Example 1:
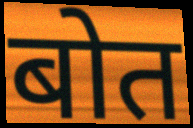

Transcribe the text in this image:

बोत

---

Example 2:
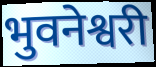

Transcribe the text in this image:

भुवनेश्वरी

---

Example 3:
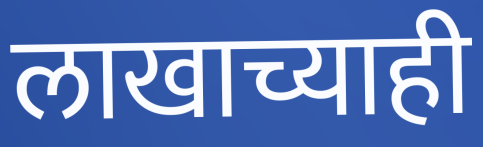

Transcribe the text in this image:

लाखाच्याही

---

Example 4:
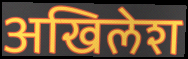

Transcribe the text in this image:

अखिलेश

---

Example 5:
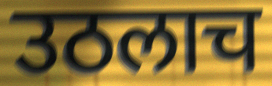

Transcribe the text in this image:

उठलाच